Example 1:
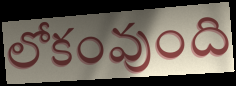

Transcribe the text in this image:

లోకంవుంది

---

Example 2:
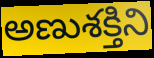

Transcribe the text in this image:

అణుశక్తిని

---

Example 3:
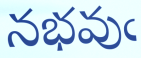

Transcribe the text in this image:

నభవుఁ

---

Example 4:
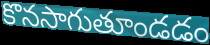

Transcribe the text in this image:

కొనసాగుతూండడం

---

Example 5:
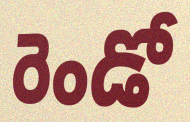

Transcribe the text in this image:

రెండో